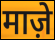
माज़े